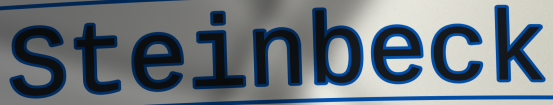
Steinbeck